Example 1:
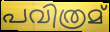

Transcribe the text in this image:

പവിത്രമ്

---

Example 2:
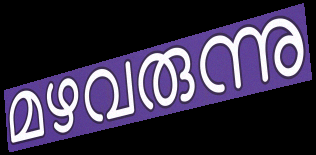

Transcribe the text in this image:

മഴവരുന്നു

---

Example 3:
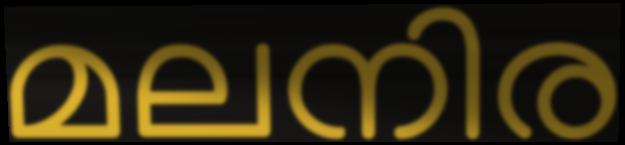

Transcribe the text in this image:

മലനിര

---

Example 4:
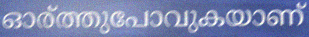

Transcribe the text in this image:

ഓര്ത്തുപോവുകയാണ്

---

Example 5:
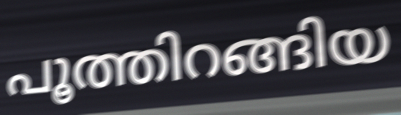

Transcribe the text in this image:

പൂത്തിറങ്ങിയ